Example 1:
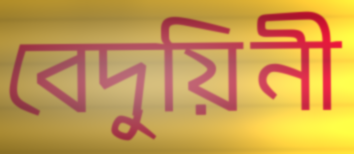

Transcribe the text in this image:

বেদুয়িনী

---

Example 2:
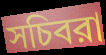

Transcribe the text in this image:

সচিবরা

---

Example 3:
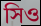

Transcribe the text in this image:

সিও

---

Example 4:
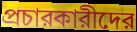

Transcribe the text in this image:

প্রচারকারীদের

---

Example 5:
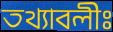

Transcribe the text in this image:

তথ্যাবলীঃ